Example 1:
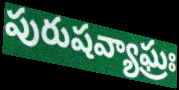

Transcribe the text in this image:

పురుషవ్యాఘ్రః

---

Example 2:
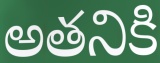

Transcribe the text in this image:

అతనికి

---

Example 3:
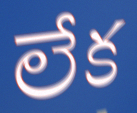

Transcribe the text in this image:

లేక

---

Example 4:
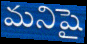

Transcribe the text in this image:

మనిషై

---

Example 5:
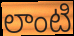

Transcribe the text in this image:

లాంటి